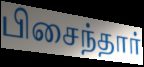
பிசைந்தார்